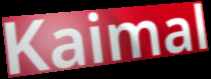
Kaimal